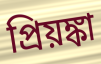
প্রিয়ঙ্কা